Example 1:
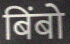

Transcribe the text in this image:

बिंबो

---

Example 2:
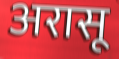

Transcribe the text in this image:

अरासू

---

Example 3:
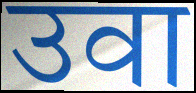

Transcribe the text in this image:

उवा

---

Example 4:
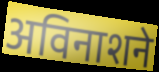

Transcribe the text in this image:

अविनाशने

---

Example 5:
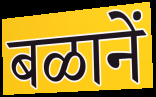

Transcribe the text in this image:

बळानें